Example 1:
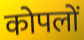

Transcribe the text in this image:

कोपलों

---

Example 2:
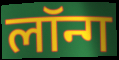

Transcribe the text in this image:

लॉन्ग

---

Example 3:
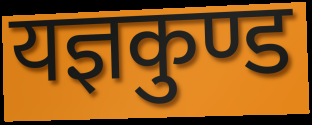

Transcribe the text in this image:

यज्ञकुण्ड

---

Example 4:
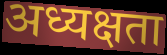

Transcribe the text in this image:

अध्यक्षता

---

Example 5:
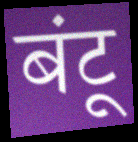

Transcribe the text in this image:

बंटू